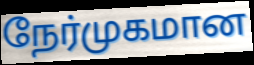
நேர்முகமான